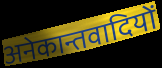
अनेकान्तवादियों